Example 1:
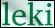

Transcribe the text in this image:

leki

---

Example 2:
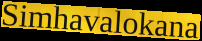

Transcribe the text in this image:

Simhavalokana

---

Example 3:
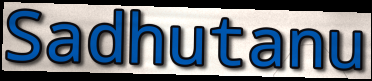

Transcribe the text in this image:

Sadhutanu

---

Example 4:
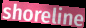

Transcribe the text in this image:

shoreline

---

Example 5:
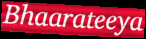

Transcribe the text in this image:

Bhaarateeya